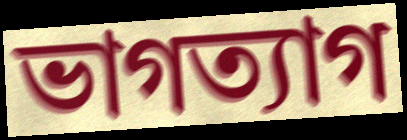
ভাগত্যাগ